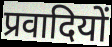
प्रवादियों